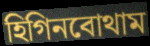
হিগিনবোথাম